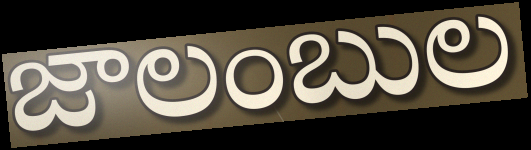
జాలంబుల